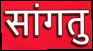
सांगतु